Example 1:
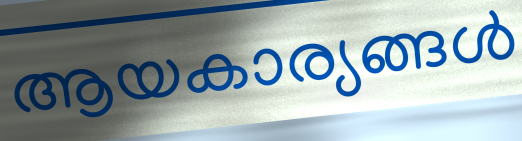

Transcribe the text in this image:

ആയകാര്യങ്ങൾ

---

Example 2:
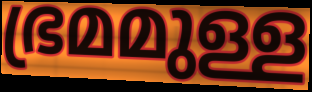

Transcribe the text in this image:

ഭ്രമമുള്ള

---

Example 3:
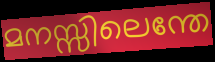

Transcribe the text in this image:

മനസ്സിലെന്തേ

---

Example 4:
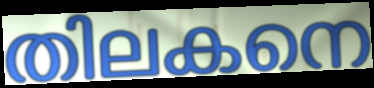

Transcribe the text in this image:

തിലകനെ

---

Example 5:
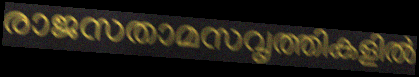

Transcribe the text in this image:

രാജസതാമസവൃത്തികളിൽ